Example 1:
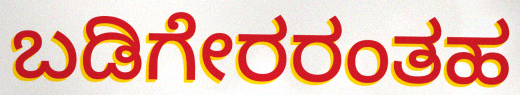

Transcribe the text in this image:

ಬಡಿಗೇರರಂತಹ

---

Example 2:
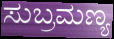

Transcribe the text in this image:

ಸುಬ್ರಮಣ್ಯ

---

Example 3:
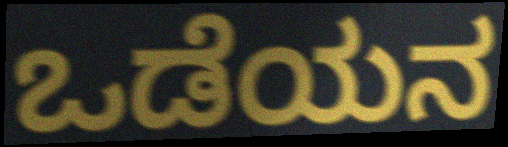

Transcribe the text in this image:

ಒಡೆಯನ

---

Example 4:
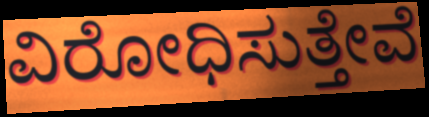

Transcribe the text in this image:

ವಿರೋಧಿಸುತ್ತೇವೆ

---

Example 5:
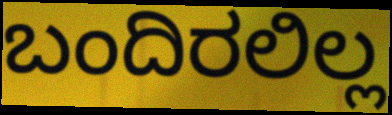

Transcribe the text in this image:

ಬಂದಿರಲಿಲ್ಲ